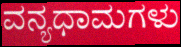
ವನ್ಯಧಾಮಗಳು